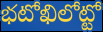
భటోఖిలోట్టో